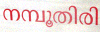
നമ്പൂതിരി